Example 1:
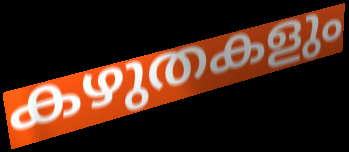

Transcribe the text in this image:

കഴുതകളും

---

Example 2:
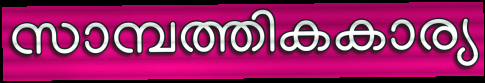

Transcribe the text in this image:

സാമ്പത്തികകാര്യ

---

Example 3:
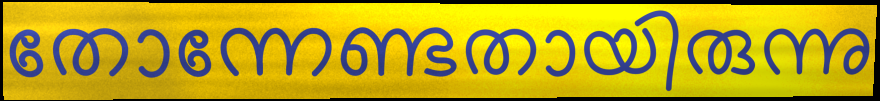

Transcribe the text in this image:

തോന്നേണ്ടതായിരുന്നു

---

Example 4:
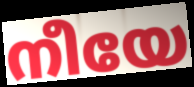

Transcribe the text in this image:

നീയേ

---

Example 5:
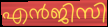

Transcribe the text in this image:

എൻജിസി